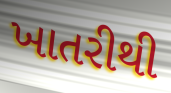
ખાતરીથી